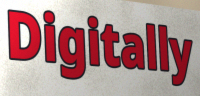
Digitally